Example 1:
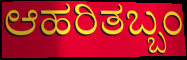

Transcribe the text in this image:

ಆಹರಿತಬ್ಬಂ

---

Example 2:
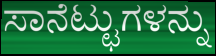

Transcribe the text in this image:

ಸಾನೆಟ್ಟುಗಳನ್ನು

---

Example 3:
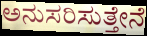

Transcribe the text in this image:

ಅನುಸರಿಸುತ್ತೇನೆ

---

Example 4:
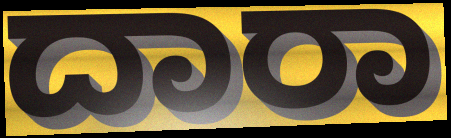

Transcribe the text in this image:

ದಾರಾ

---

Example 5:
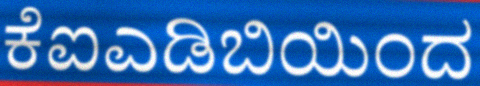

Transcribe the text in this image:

ಕೆಐಎಡಿಬಿಯಿಂದ